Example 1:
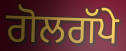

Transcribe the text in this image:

ਗੋਲਗੱਪੇ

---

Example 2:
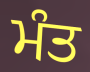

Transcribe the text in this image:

ਮੰਤ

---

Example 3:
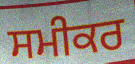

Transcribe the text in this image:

ਸਮੀਕਰ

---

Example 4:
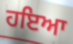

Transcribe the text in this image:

ਹਇਆ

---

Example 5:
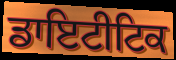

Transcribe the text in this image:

ਡਾਇਟੀਟਿਕ